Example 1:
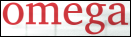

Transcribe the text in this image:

omega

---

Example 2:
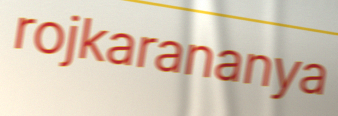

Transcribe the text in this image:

rojkarananya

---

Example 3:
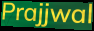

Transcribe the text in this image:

Prajjwal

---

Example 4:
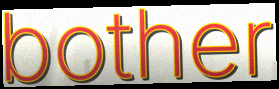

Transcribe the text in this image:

bother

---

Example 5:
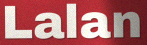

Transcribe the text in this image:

Lalan